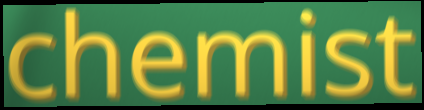
chemist